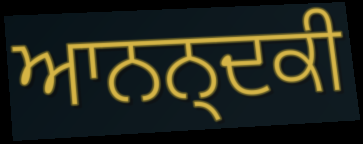
ਆਨਨ੍ਦਕੀ